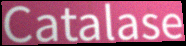
Catalase